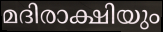
മദിരാക്ഷിയും